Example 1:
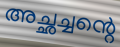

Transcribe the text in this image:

അച്ഛച്ചന്റെ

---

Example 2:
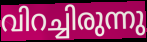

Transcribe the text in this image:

വിറച്ചിരുന്നു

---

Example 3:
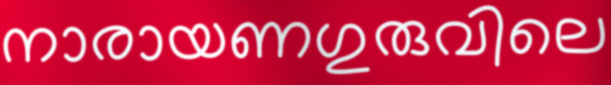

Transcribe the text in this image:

നാരായണഗുരുവിലെ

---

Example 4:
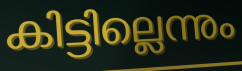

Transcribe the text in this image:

കിട്ടില്ലെന്നും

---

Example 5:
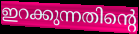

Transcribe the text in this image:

ഇറക്കുന്നതിന്റെ